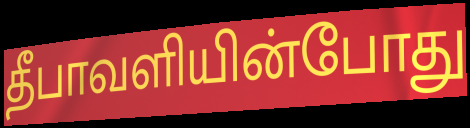
தீபாவளியின்போது